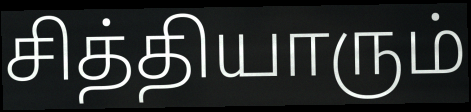
சித்தியாரும்